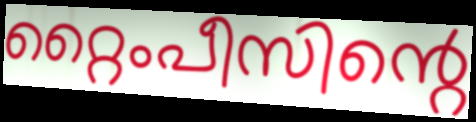
റ്റൈംപീസിന്റെ